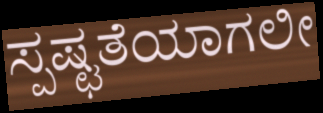
ಸ್ಪಷ್ಟತೆಯಾಗಲೀ